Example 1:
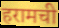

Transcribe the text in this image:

हरामची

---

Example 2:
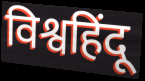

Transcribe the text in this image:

विश्वहिंदू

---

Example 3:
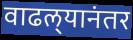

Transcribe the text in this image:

वाढल्यानंतर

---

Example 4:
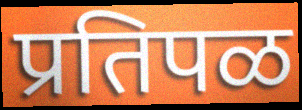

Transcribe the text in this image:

प्रतिपळ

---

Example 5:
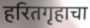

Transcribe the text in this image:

हरितगृहाचा